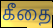
கீதை